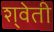
श्वेती